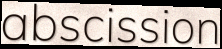
abscission